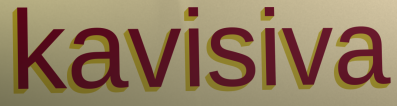
kavisiva